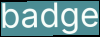
badge